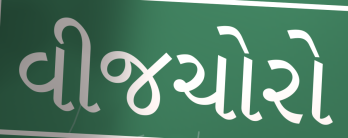
વીજચોરો